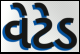
વેટેડ